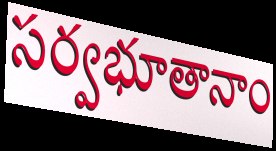
సర్వభూతానాం